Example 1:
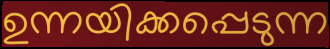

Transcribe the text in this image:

ഉന്നയിക്കപ്പെടുന്ന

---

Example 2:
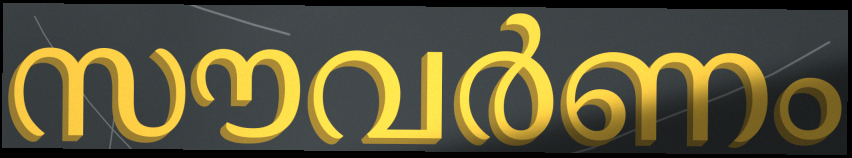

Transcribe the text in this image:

സൗവർണം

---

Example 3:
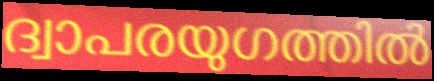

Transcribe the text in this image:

ദ്വാപരയുഗത്തിൽ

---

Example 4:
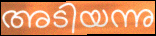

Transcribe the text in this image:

അടിയന്നു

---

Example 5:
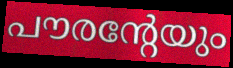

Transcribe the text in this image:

പൗരന്റേയും